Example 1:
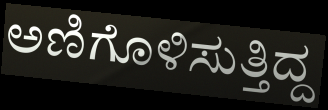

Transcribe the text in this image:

ಅಣಿಗೊಳಿಸುತ್ತಿದ್ದ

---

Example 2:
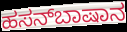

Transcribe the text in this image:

ಹಸನ್‌ಬಾಷಾನ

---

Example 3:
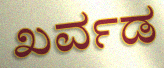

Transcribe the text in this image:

ಖರ್ವಡ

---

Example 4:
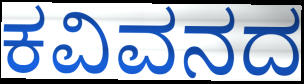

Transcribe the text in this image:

ಕವಿವನದ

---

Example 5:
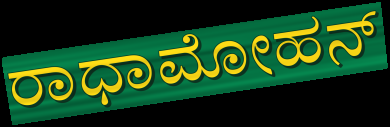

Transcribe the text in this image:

ರಾಧಾಮೋಹನ್